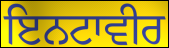
ਇਨਟਾਵੀਰ